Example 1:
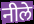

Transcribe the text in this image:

नीले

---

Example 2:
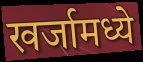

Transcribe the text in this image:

खर्जामध्ये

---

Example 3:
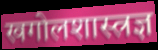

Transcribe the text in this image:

खगोलशास्त्रज्ञ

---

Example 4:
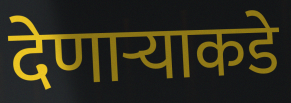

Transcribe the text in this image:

देणाऱ्याकडे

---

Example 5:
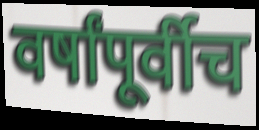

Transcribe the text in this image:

वर्षांपूर्वीच